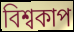
বিশ্বকাপ